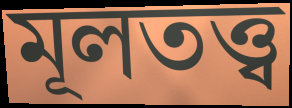
মূলতত্ত্ব